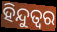
ହିନ୍ଦୁତ୍ବର